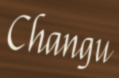
Changu